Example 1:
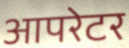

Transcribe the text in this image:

आपरेटर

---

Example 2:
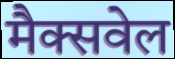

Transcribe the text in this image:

मैक्‍सवेल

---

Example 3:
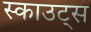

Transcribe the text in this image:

स्काउट्स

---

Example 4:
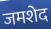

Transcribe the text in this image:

जमशेद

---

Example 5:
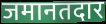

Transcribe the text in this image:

जमानतदार